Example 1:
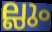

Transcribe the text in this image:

ല്ലും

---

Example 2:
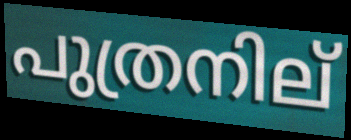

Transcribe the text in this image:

പുത്രനില്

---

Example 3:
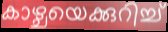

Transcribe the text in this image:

കാഴ്ചയെക്കുറിച്ച്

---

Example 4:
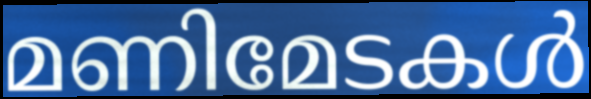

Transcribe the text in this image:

മണിമേടകൾ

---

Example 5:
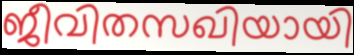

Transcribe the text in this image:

ജീവിതസഖിയായി